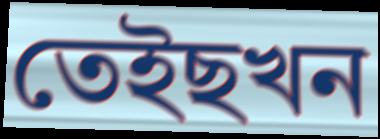
তেইছখন